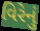
વિરેનું